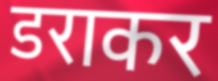
डराकर